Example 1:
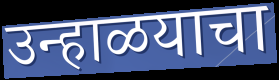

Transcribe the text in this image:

उन्हाळयाचा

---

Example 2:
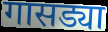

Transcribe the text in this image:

गासड्या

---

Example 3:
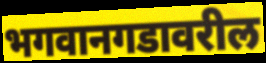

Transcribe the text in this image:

भगवानगडावरील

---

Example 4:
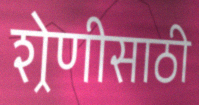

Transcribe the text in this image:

श्रेणीसाठी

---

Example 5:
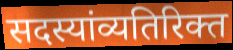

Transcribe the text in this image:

सदस्यांव्यतिरिक्त